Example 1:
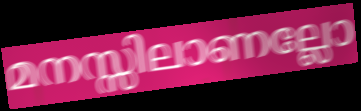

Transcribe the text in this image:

മനസ്സിലാണല്ലോ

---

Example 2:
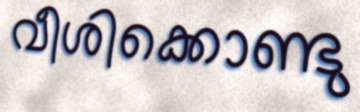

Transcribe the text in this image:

വീശിക്കൊണ്ടു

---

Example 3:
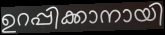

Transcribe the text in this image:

ഉറപ്പിക്കാനായി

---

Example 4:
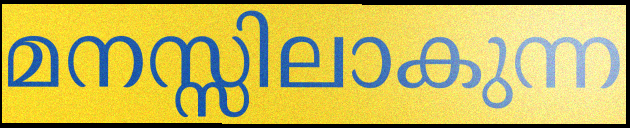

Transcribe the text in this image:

മനസ്സിലാകുന്ന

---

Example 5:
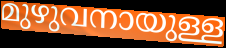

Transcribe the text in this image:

മുഴുവനായുള്ള